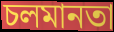
চলমানতা